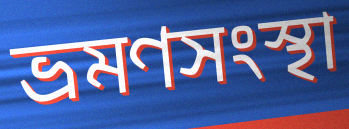
ভ্রমণসংস্থা